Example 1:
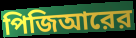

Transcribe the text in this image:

পিজিআরের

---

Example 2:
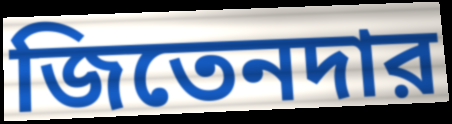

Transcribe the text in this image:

জিতেনদার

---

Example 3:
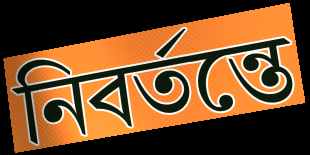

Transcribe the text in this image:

নিবর্তন্তে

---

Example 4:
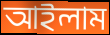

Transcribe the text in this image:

আইলাম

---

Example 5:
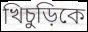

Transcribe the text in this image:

খিচুড়িকে